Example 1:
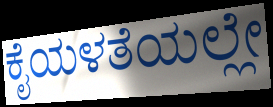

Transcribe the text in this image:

ಕೈಯಳತೆಯಲ್ಲೇ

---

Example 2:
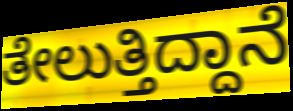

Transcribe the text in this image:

ತೇಲುತ್ತಿದ್ದಾನೆ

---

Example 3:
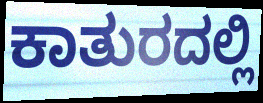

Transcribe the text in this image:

ಕಾತುರದಲ್ಲಿ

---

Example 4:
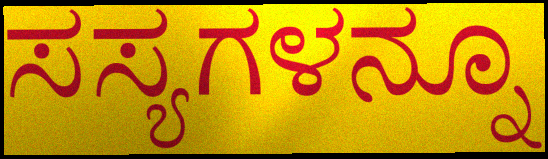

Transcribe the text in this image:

ಸಸ್ಯಗಳನ್ನೂ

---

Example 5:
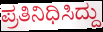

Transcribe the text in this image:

ಪ್ರತಿನಿಧಿಸಿದ್ದು